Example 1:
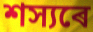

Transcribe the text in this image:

শস্যৰে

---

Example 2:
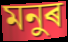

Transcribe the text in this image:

মনুৰ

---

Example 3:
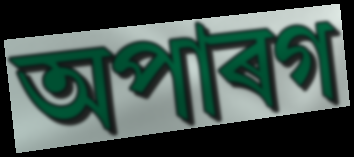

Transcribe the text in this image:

অপাৰগ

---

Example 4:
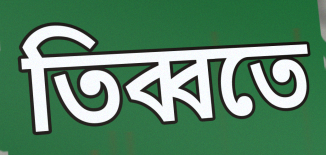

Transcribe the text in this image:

তিব্বতে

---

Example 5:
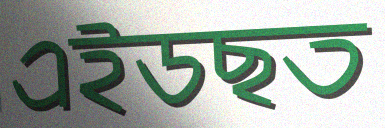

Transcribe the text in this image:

এইডছত